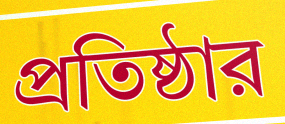
প্রতিষ্ঠার